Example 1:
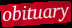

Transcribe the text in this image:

obituary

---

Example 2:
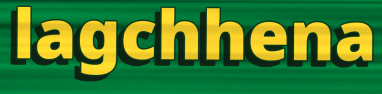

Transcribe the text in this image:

lagchhena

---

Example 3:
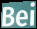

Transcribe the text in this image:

Bei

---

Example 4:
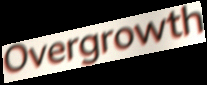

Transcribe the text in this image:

Overgrowth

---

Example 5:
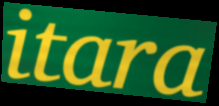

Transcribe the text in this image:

itara